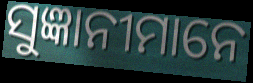
ସୁଜ୍ଞାନୀମାନେ